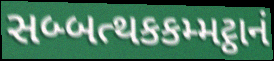
સબ્બત્થકકમ્મટ્ઠાનં